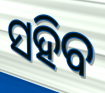
ସହିବ